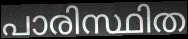
പാരിസ്ഥിത